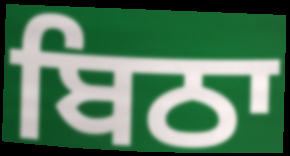
ਬਿਠਾ